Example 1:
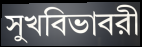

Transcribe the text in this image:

সুখবিভাবরী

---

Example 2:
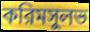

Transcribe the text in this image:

করিমসুলভ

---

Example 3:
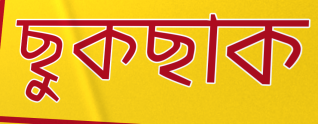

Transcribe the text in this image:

ছুকছাক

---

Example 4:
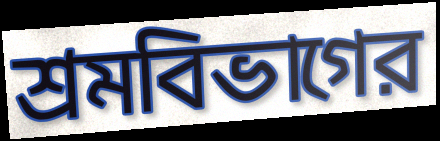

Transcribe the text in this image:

শ্রমবিভাগের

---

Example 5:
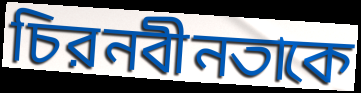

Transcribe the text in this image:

চিরনবীনতাকে